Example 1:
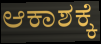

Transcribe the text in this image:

ಆಕಾಶಕ್ಕೆ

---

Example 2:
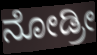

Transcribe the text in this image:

ನೋಡ್ರೀ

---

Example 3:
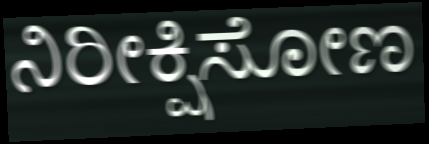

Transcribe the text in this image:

ನಿರೀಕ್ಷಿಸೋಣ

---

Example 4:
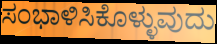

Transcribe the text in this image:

ಸಂಭಾಳಿಸಿಕೊಳ್ಳುವುದು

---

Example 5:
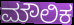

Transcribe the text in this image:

ಮೌಲಿಕ